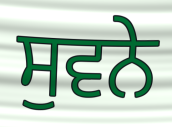
ਸੁਵਨੇ